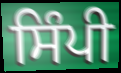
ਸਿੰਪੀ